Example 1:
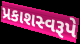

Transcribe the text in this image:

પ્રકાશસ્વરૂપે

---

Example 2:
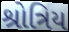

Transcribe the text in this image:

શ્રોત્રિય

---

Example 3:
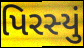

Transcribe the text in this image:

પિરસ્યું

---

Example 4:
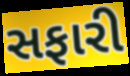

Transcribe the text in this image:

સફારી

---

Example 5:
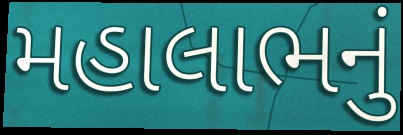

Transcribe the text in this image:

મહાલાભનું